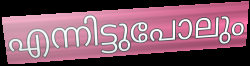
എന്നിട്ടുപോലും